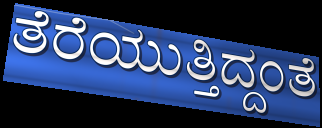
ತೆರೆಯುತ್ತಿದ್ದಂತೆ